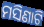
ମସିଣାଟି